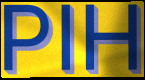
PIH